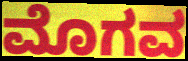
ಮೊಗವ